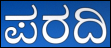
ಪರದಿ